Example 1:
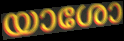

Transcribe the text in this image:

യാശോ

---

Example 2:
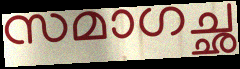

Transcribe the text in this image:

സമാഗച്ഛ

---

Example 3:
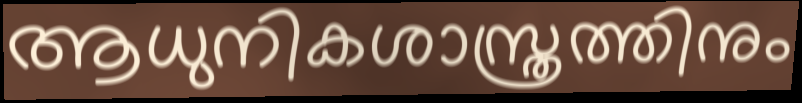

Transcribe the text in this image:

ആധുനികശാസ്ത്രത്തിനും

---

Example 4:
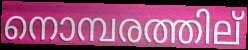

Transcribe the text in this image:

നൊമ്പരത്തില്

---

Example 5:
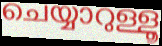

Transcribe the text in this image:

ചെയ്യാറുള്ളൂ